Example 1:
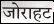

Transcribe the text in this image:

जोराहट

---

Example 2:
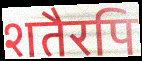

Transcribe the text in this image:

शतैरपि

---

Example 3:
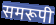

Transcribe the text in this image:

समरूपी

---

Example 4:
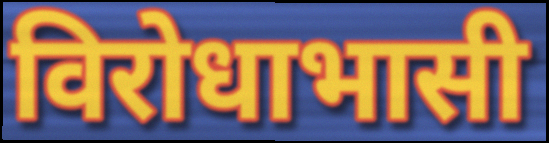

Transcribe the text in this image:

विरोधाभासी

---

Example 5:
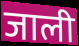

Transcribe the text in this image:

जाली